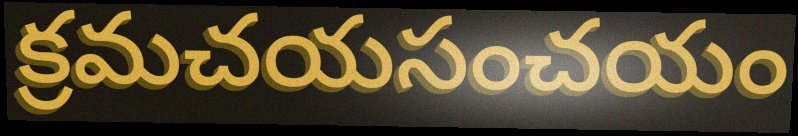
క్రమచయసంచయం